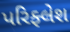
પરિફ્લેશ